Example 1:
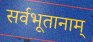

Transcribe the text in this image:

सर्वभूतानाम्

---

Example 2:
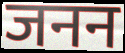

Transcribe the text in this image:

जनन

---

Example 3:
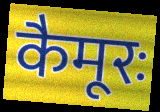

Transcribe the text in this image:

कैमूरः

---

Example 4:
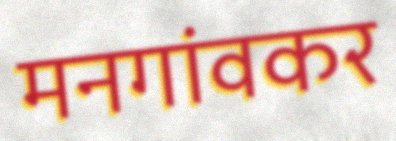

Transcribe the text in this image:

मनगांवकर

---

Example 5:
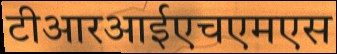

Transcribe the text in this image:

टीआरआईएचएमएस